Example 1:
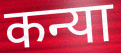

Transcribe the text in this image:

कन्या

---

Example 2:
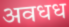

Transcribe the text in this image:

अवधध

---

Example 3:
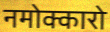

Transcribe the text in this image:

नमोक्कारो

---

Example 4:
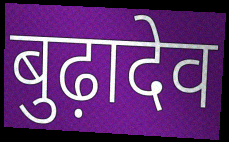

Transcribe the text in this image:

बुढ़ादेव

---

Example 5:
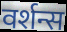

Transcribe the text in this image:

वर्शन्स